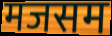
मजसम